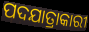
ପଦଯାତ୍ରାକାରୀ